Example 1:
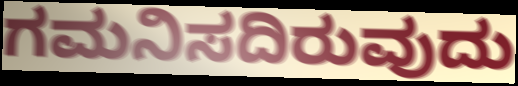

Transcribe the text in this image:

ಗಮನಿಸದಿರುವುದು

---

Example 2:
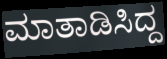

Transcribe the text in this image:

ಮಾತಾಡಿಸಿದ್ದ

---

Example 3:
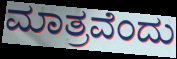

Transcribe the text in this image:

ಮಾತ್ರವೆಂದು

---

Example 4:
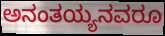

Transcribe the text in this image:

ಅನಂತಯ್ಯನವರೂ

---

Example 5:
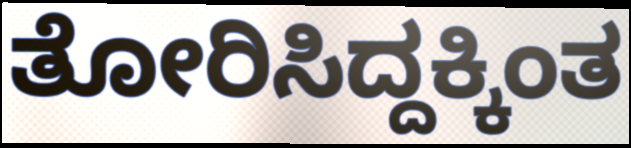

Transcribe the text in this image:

ತೋರಿಸಿದ್ದಕ್ಕಿಂತ